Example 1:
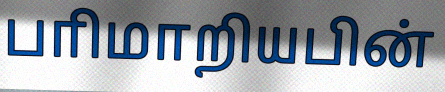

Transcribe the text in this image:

பரிமாறியபின்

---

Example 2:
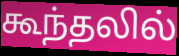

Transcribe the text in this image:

கூந்தலில்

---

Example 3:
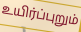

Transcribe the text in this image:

உயிர்ப்புறும்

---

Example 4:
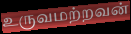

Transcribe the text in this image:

உருவமற்றவன்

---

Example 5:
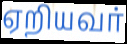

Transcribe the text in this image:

ஏறியவர்